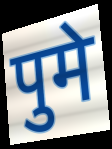
पुमे